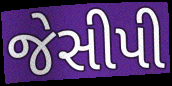
જેસીપી